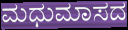
ಮಧುಮಾಸದ